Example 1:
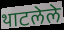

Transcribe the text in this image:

थाटलेले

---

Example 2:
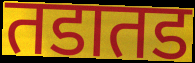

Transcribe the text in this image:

तडातड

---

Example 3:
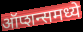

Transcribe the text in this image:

ऑप्शन्समध्ये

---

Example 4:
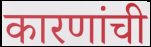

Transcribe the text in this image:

कारणांची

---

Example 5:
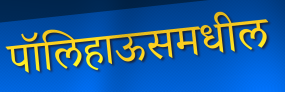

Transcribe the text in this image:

पॉलिहाऊसमधील